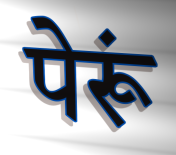
पेरूं